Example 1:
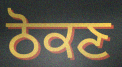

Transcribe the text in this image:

ਠੋਕਣ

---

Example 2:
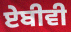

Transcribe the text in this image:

ਏਬੀਵੀ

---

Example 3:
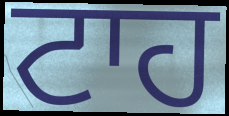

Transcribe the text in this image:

ਟਾਹ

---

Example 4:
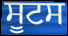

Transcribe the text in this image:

ਸੂਟਸ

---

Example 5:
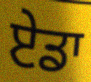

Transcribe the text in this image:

ਏਡਾ